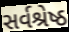
સર્વશ્રેષ્ઠ